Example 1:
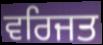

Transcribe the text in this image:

ਵਰਿਜਤ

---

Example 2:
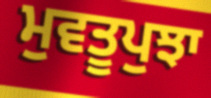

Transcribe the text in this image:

ਮੁਵਤੂਪੁਝਾ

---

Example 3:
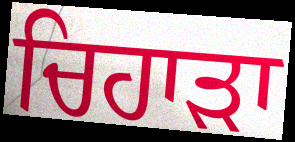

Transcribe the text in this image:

ਚਿਹਾੜਾ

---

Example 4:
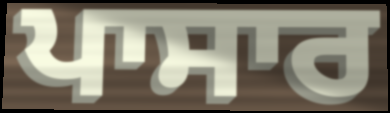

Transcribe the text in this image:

ਪਾਸਾਰ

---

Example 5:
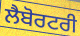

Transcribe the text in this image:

ਲੈਬੋਰਟਰੀ